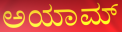
ಅಯಾಮ್